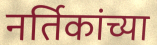
नर्तिकांच्या